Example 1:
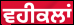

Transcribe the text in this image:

ਵਹੀਕਲਾਂ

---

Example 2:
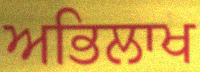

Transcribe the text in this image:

ਅਭਿਲਾਖ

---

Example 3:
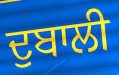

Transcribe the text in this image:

ਦੁਬਾਲੀ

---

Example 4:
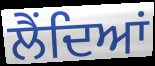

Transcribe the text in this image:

ਲੈਂਦਿਆਂ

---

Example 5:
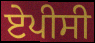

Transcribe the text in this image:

ਏਪੀਸੀ